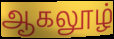
ஆகலூழ்